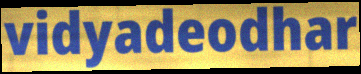
vidyadeodhar